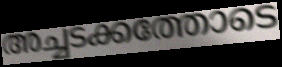
അച്ചടക്കത്തോടെ